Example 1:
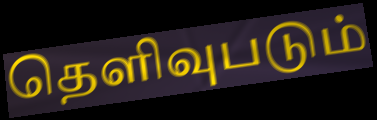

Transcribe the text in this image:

தெளிவுபடும்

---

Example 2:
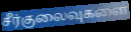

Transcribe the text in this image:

சீர்குலைவுகளை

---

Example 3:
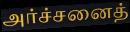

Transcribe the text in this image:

அர்ச்சனைத்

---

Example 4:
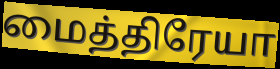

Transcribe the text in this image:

மைத்திரேயா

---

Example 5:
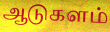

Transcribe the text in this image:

ஆடுகளம்